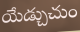
యేడ్చుచుం